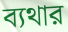
ব্যথার